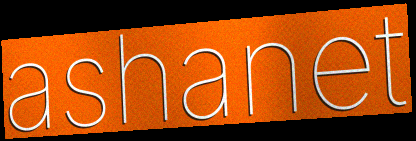
ashanet